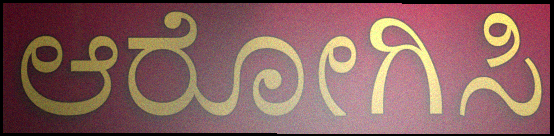
ಆರೋಗಿಸಿ